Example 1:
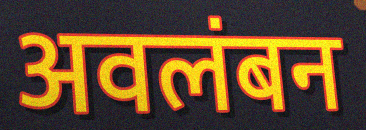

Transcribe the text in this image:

अवलंबन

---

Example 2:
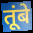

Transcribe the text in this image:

तूंबे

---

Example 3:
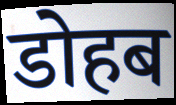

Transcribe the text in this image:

डोहब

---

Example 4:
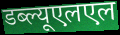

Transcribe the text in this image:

डब्ल्यूएलएल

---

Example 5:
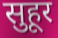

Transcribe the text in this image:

सुहूर